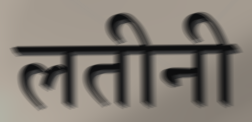
लतीनी